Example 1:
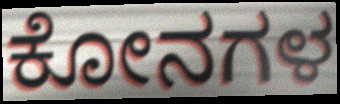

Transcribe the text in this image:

ಕೋನಗಳ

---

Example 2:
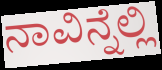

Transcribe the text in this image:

ನಾವಿನ್ನೆಲ್ಲಿ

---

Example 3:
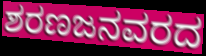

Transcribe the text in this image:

ಶರಣಜನವರದ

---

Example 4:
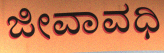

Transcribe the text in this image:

ಜೀವಾವಧಿ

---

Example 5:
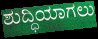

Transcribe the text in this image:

ಶುದ್ಧಿಯಾಗಲು